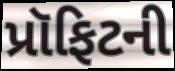
પ્રૉફિટની